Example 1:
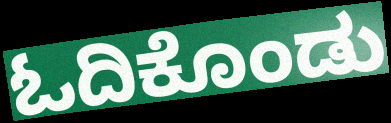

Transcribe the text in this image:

ಓದಿಕೊಂಡು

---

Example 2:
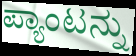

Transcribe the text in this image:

ಪ್ಯಾಂಟನ್ನು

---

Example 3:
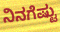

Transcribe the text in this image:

ನಿನಗೆಷ್ಟು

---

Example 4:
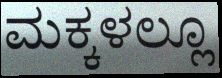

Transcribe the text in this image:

ಮಕ್ಕಳಲ್ಲೂ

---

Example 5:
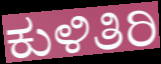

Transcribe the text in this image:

ಕುಳಿತಿರಿ